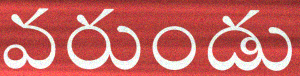
వరుండు